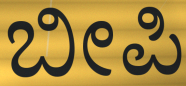
ಬೀಪಿ